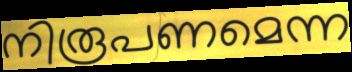
നിരൂപണമെന്ന